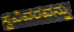
ಸ್ವವಿವರವನ್ನು